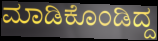
ಮಾಡಿಕೊಂಡಿದ್ದ